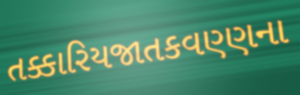
તક્કારિયજાતકવણ્ણના